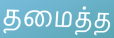
தமைத்த